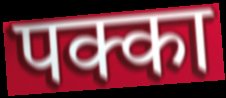
पक्का